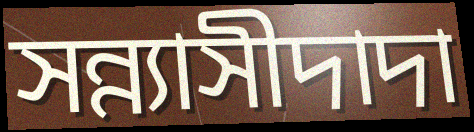
সন্ন্যাসীদাদা